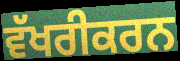
ਵੱਖਰੀਕਰਨ